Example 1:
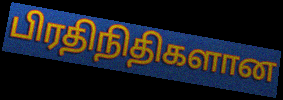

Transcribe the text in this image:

பிரதிநிதிகளான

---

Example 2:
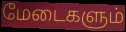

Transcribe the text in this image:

மேடைகளும்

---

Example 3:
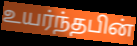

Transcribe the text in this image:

உயர்ந்தபின்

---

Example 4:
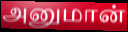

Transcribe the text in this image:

அனுமான்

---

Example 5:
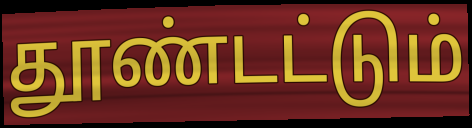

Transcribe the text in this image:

தூண்டட்டும்